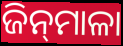
ଜିନ୍‌ମାଳା